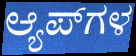
ಆ್ಯಪ್‌ಗಳ